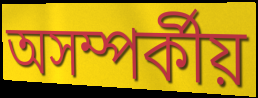
অসম্পর্কীয়